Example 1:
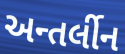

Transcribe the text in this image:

અન્તર્લીન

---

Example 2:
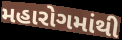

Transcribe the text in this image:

મહારોગમાંથી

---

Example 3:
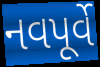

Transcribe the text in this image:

નવપૂર્વે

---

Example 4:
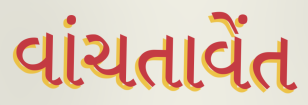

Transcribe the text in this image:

વાંચતાવેંત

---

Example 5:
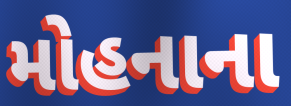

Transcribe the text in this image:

મોહનાના